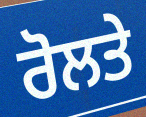
ਰੋਲਤੇ